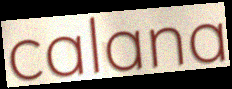
calana